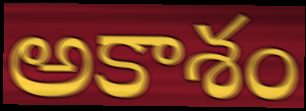
అకాశం